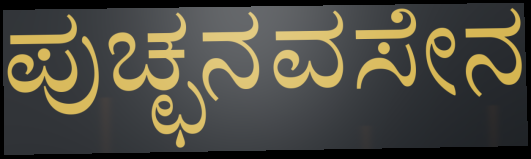
ಪುಚ್ಛನವಸೇನ